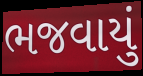
ભજવાયું